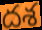
దశ